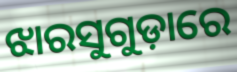
ଝାରସୁଗୁଡ଼ାରେ